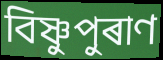
বিষ্ণুপুৰাণ